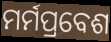
ମର୍ମପ୍ରବେଶ